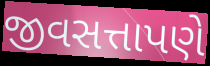
જીવસત્તાપણે